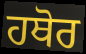
ਹਥੋਰ